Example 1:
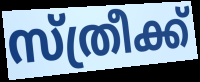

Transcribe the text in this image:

സ്ത്രീക്ക്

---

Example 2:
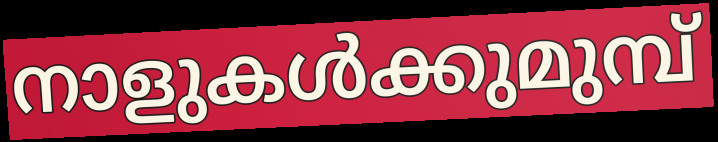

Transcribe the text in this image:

നാളുകൾക്കുമുമ്പ്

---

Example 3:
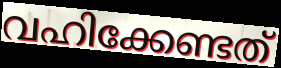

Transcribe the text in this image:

വഹിക്കേണ്ടത്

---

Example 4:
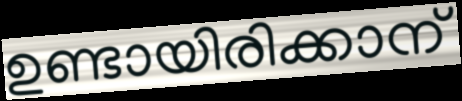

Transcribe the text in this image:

ഉണ്ടായിരിക്കാന്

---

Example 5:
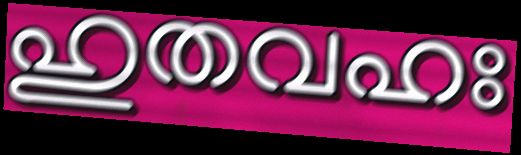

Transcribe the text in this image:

ഹുതവഹഃ